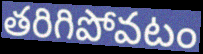
తరిగిపోవటం